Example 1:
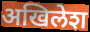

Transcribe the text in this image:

अखिलेश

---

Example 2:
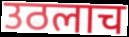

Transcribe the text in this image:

उठलाच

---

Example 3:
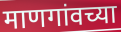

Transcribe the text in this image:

माणगांवच्या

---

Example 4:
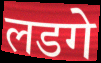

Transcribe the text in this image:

लडगे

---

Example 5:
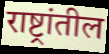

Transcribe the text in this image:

राष्ट्रांतील